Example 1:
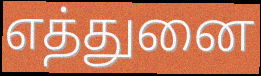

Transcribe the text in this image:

எத்துனை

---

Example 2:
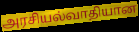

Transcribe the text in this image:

அரசியல்வாதியான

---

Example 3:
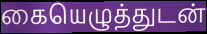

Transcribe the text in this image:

கையெழுத்துடன்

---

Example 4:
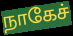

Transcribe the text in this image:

நாகேச்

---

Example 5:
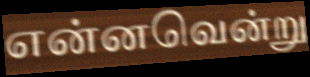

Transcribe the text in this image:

என்னவென்று